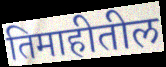
तिमाहीतील